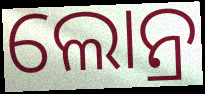
ଲୋନ୍ର